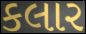
કલાર